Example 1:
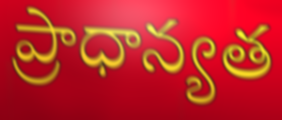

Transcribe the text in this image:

ప్రాధాన్యత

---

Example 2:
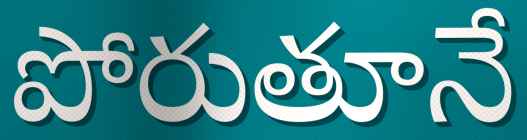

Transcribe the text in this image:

పోరుతూనే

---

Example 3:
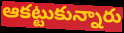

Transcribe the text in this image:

ఆకట్టుకున్నారు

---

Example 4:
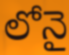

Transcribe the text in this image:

లోనై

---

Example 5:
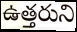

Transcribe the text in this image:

ఉత్తరుని